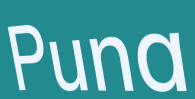
Puna